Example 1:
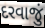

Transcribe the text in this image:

દરવાજું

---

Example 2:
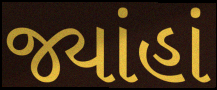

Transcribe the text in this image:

જ્યાંહાં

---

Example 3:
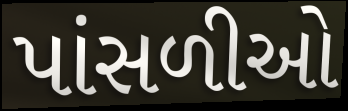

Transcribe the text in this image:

પાંસળીઓ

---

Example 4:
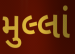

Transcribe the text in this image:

મુલ્લાં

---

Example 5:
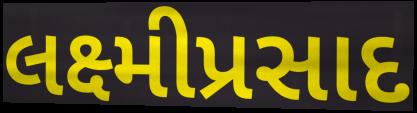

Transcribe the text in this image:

લક્ષ્મીપ્રસાદ